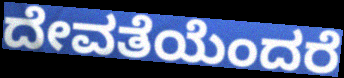
ದೇವತೆಯೆಂದರೆ